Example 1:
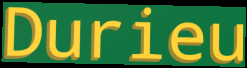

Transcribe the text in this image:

Durieu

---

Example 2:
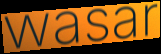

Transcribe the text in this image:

wasar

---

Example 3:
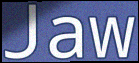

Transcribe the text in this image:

Jaw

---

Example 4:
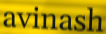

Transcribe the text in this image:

avinash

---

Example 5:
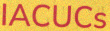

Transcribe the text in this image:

IACUCs